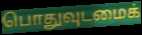
பொதுவுடமைக்